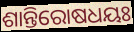
ଶାନ୍ତିରୋଷଧୟଃ